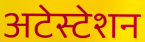
अटेस्टेशन